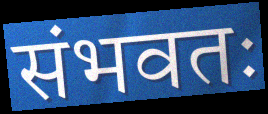
संभवतः